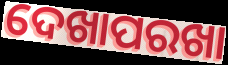
ଦେଖାପରଖା